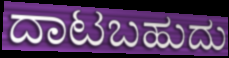
ದಾಟಬಹುದು